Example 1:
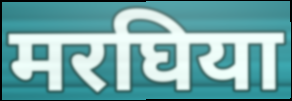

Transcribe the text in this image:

मरघिया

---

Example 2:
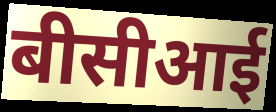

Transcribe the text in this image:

बीसीआई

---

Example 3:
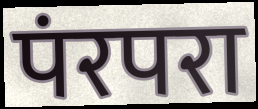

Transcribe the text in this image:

पंरपरा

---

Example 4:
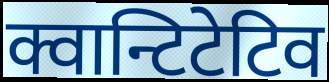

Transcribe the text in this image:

क्वान्टिटेटिव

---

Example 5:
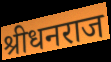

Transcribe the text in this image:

श्रीधनराज